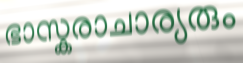
ഭാസ്കരാചാര്യരും